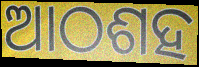
ଆଠଶହ